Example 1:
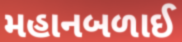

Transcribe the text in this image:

મહાનબળાઈ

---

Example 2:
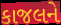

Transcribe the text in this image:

કાજલને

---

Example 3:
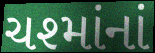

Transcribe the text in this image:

ચશ્માંનાં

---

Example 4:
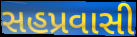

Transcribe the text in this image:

સહપ્રવાસી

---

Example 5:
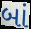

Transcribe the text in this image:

બાં